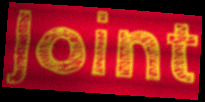
Joint